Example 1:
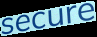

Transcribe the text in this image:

secure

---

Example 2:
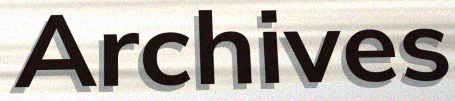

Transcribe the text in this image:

Archives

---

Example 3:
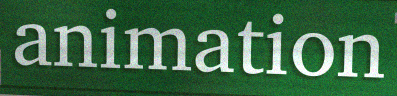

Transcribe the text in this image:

animation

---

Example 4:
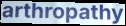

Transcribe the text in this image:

arthropathy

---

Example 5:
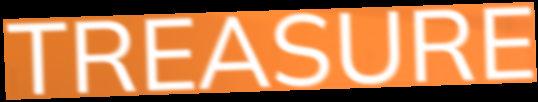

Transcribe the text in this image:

TREASURE